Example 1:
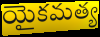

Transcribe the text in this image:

యైకమత్య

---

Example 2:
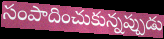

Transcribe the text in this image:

సంపాదించుకున్నప్పుడు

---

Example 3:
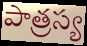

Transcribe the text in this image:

పాత్రస్య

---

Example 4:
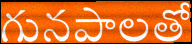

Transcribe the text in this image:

గునపాలతో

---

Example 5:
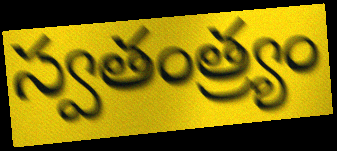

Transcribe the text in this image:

స్వతంత్ర్యం